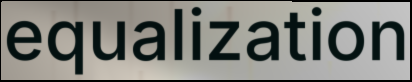
equalization